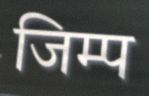
जिम्प